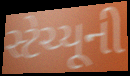
સ્ટેચ્યૂની